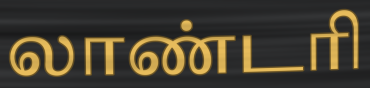
லாண்டரி